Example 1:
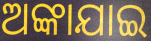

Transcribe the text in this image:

ଅଙ୍କାଯାଇ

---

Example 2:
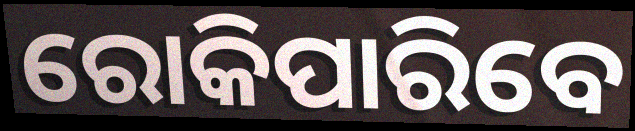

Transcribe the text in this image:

ରୋକିପାରିବେ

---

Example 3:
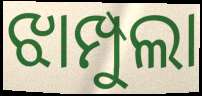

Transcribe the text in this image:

ଝାମ୍ପୁଲା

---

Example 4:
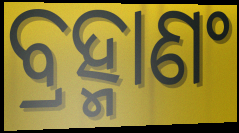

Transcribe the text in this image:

ବ୍ରହ୍ମାଣଂ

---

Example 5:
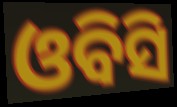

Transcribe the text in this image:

ଓବିସି